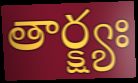
తార్క్ష్యః